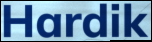
Hardik